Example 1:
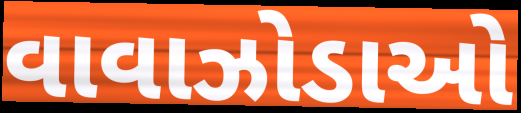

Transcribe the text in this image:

વાવાઝોડાઓ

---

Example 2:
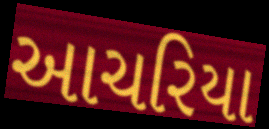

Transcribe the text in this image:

આચરિયા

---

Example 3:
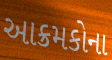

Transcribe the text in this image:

આક્રમકોના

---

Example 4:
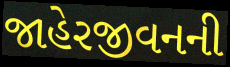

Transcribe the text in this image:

જાહેરજીવનની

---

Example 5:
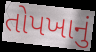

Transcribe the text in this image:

તોપખાનું